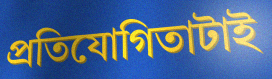
প্রতিযোগিতাটাই